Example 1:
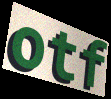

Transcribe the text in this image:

otf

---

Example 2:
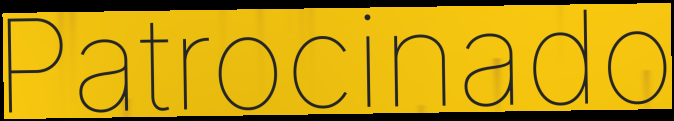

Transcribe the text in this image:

Patrocinado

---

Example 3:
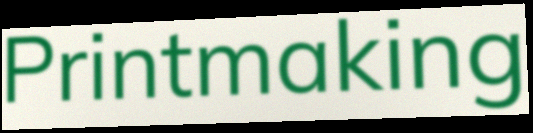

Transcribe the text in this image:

Printmaking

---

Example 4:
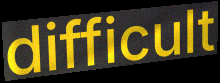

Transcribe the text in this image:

difficult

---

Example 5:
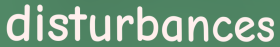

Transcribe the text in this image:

disturbances